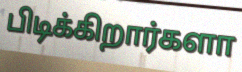
பிடிக்கிறார்களா